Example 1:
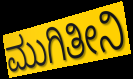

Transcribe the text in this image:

ಮುಗಿತೀನಿ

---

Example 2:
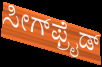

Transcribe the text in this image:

ಸೀಗ್‌ಫ್ರೈಡ್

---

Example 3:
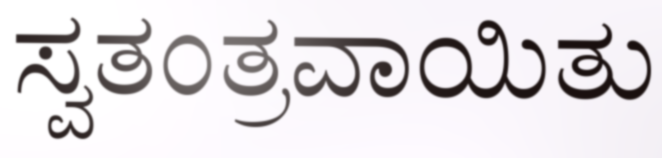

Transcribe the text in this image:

ಸ್ವತಂತ್ರವಾಯಿತು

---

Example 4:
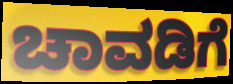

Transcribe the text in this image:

ಚಾವಡಿಗೆ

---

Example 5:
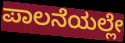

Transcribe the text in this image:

ಪಾಲನೆಯಲ್ಲೇ